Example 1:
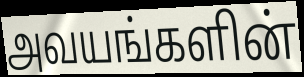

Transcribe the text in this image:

அவயங்களின்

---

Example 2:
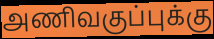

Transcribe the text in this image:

அணிவகுப்புக்கு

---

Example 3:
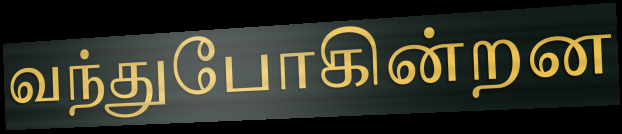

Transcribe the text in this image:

வந்துபோகின்றன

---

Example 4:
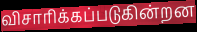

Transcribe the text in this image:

விசாரிக்கப்படுகின்றன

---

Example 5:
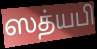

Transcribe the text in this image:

ஸத்யபி